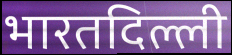
भारतदिल्ली